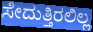
ಸೇದುತ್ತಿರಲಿಲ್ಲ